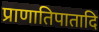
प्राणातिपातादि